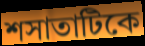
শসাতাটিকে